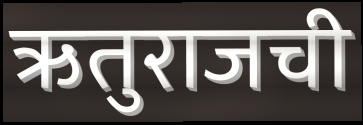
ऋतुराजची